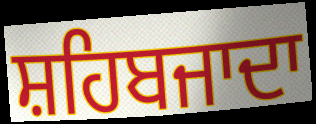
ਸ਼ਹਿਬਜਾਦਾ